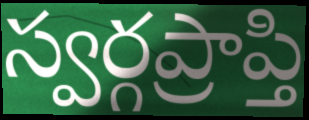
స్వర్గప్రాప్తి